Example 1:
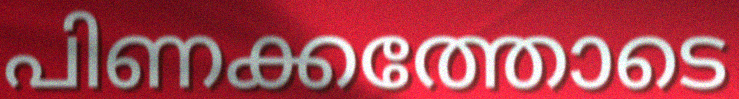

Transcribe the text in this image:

പിണക്കത്തോടെ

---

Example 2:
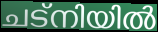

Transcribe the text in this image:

ചട്നിയിൽ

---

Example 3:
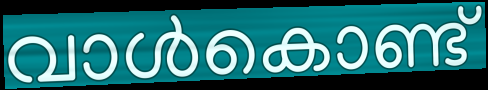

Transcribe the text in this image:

വാൾകൊണ്ട്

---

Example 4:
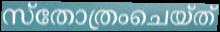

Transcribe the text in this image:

സ്തോത്രംചെയ്ത്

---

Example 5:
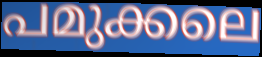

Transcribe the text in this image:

പമുക്കലെ